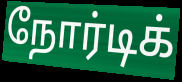
நோர்டிக்